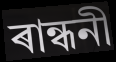
ৰান্ধনী